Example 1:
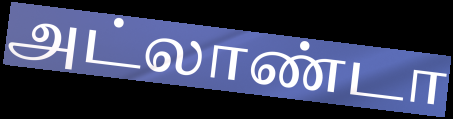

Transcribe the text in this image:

அட்லாண்டா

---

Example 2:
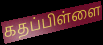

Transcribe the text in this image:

கதப்பிள்ளை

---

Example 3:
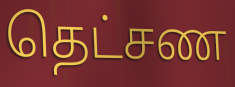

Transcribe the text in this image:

தெட்சண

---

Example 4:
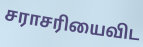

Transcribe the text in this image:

சராசரியைவிட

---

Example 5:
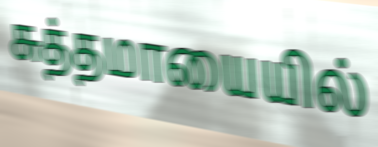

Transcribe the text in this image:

சுத்தமாயையில்